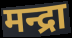
मन्द्रा